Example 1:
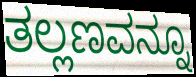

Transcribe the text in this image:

ತಲ್ಲಣವನ್ನೂ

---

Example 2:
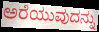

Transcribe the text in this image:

ಅರೆಯುವುದನ್ನು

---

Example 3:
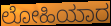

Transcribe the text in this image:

ಲೋಹಿಯಾರ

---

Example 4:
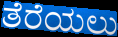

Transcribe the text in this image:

ತೆರೆಯಲು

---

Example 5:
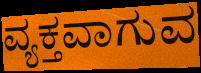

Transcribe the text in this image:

ವ್ಯಕ್ತವಾಗುವ